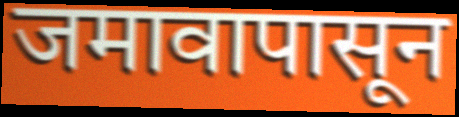
जमावापासून